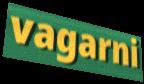
vagarni